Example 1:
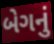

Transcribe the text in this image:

બેગનું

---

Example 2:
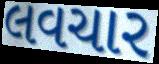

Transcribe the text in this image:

લવચાર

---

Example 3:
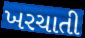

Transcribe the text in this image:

ખરચાતી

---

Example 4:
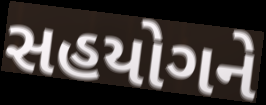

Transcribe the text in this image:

સહયોગને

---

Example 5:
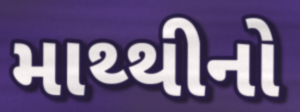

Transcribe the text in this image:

માથ્થીનો